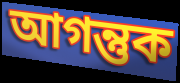
আগন্তুক